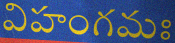
విహంగమః